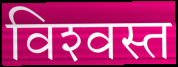
विश्वस्त